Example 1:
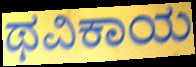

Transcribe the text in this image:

ಥವಿಕಾಯ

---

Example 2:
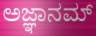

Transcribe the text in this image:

ಅಜ್ಞಾನಮ್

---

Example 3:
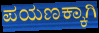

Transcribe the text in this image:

ಪಯಣಕ್ಕಾಗಿ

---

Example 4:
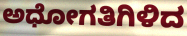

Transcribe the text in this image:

ಅಧೋಗತಿಗಿಳಿದ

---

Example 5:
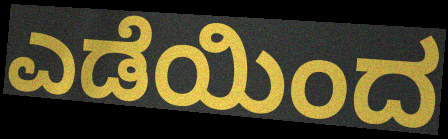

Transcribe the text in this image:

ಎಡೆಯಿಂದ